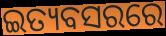
ଇତ୍ୟବସରରେ